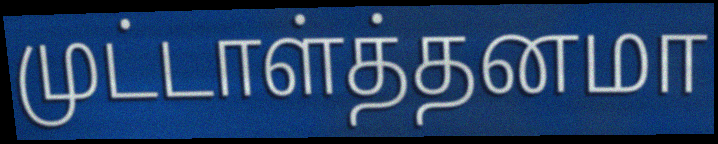
முட்டாள்த்தனமா